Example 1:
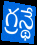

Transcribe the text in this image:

గ్రన్థే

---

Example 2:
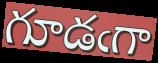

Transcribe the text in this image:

గూడఁగా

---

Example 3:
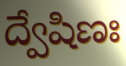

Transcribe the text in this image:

ద్వేషిణః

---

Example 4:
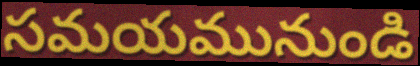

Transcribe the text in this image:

సమయమునుండి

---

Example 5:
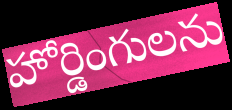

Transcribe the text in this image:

హోర్డింగులను